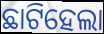
ଛାଟିହେଲା